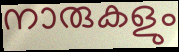
നാരുകളും